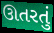
ઊતરતું